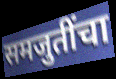
समजुतींचा